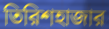
তিরিশহাজার